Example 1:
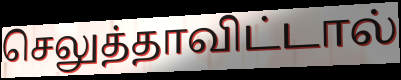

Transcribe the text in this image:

செலுத்தாவிட்டால்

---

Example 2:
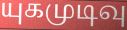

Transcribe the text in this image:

யுகமுடிவு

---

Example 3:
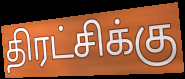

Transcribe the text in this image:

திரட்சிக்கு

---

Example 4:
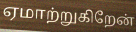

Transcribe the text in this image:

ஏமாற்றுகிறேன்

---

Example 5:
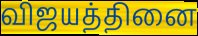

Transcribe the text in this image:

விஜயத்தினை